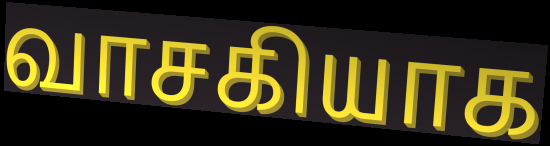
வாசகியாக